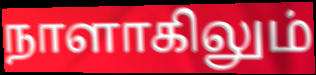
நாளாகிலும்